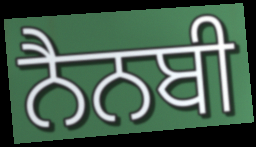
ਨੈਨਬੀ